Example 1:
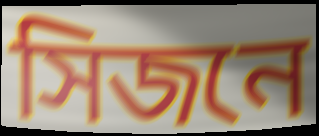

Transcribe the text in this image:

সিজনে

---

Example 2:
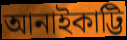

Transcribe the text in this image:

আনাইকাট্টি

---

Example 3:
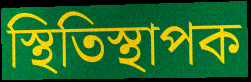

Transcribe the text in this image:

স্থিতিস্থাপক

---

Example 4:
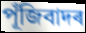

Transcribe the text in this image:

পূঁজিবাদৰ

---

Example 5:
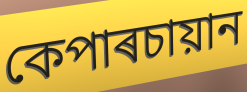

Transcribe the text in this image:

কেপাৰচায়ান